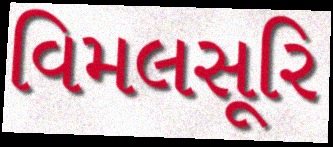
વિમલસૂરિ